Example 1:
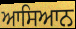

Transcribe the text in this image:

ਆਸਿਆਨ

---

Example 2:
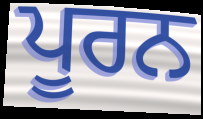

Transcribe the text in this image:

ਪੂਰਨ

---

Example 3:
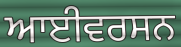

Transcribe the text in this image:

ਆਈਵਰਸਨ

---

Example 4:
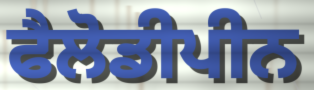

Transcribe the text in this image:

ਫੈਲੋਡੀਪੀਨ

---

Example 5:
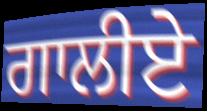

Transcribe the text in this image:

ਗਾਲੀਏ